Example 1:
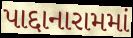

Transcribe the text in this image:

પાદ્દાનારામમાં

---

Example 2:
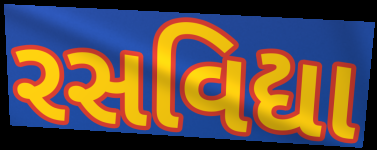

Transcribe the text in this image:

રસવિદ્યા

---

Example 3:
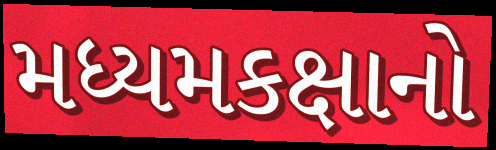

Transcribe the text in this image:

મધ્યમકક્ષાનો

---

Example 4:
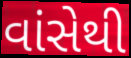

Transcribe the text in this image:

વાંસેથી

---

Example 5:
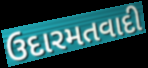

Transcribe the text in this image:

ઉદારમતવાદી